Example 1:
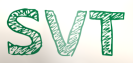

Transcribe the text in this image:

SVT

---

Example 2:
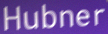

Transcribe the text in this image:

Hubner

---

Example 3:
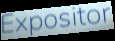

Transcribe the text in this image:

Expositor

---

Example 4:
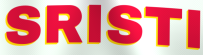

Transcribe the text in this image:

SRISTI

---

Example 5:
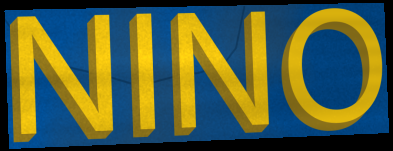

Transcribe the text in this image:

NINO